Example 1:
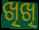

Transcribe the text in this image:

ଖିଖି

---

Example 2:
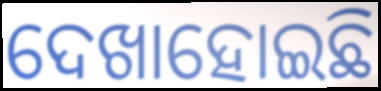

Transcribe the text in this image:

ଦେଖାହୋଇଛି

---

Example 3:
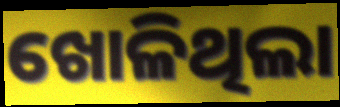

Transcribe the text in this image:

ଖୋଳିଥିଲା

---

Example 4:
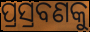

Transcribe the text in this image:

ପ୍ରସ୍ରବଣକୁ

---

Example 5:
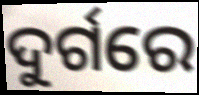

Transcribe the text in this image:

ଦୁର୍ଗରେ